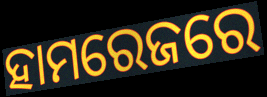
ହାମରେଜରେ